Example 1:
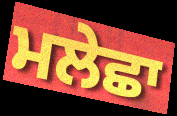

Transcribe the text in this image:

ਮਲੇਛਾ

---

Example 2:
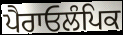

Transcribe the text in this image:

ਪੈਰਾਓਲੰਪਿਕ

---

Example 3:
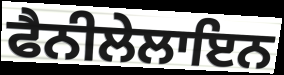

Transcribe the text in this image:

ਫੈਨੀਲੇਲਾਇਨ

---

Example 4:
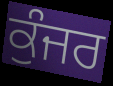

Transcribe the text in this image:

ਕੁੰਜਰ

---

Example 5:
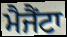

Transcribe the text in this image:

ਮੈਜੈਂਟਾ